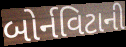
બોર્નવિટાની